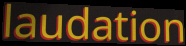
laudation